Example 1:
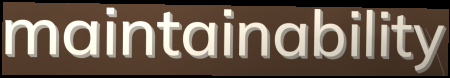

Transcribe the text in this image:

maintainability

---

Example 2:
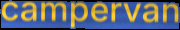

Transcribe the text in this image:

campervan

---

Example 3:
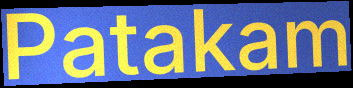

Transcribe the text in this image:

Patakam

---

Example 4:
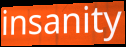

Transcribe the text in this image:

insanity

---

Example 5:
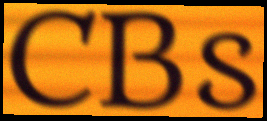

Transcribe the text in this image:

CBs